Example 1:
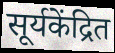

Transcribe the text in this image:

सूर्यकेंद्रित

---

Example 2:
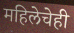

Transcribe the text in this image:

महिलेचेही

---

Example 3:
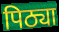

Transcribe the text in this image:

पिठ्या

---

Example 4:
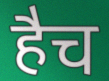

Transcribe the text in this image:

हैच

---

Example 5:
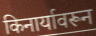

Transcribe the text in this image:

किनार्यावरून